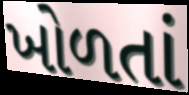
ખોળતાં